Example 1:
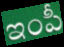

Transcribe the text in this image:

ఇంపీ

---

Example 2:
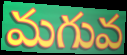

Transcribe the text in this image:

మగువ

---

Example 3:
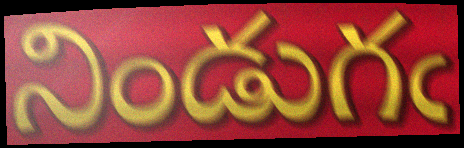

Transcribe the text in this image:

నిండుగఁ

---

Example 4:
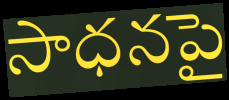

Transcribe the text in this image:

సాధనపై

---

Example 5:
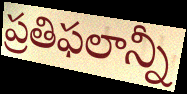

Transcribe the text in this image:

ప్రతిఫలాన్నీ